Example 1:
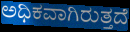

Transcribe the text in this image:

ಅಧಿಕವಾಗಿರುತ್ತದೆ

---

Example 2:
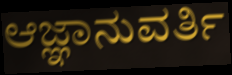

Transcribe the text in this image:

ಆಜ್ಞಾನುವರ್ತಿ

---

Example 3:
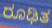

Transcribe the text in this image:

ರೂಢಿತ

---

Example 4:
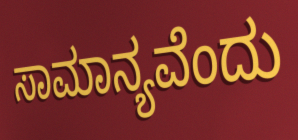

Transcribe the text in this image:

ಸಾಮಾನ್ಯವೆಂದು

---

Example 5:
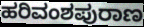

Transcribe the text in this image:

ಹರಿವಂಶಪುರಾಣ